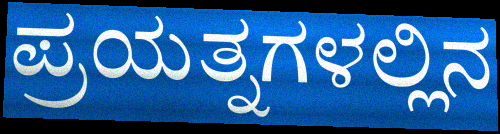
ಪ್ರಯತ್ನಗಳಲ್ಲಿನ